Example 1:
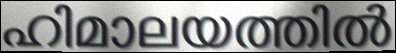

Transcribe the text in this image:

ഹിമാലയത്തിൽ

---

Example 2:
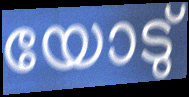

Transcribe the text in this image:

യോടു്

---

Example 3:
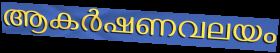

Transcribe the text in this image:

ആകർഷണവലയം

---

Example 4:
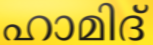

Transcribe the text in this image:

ഹാമിദ്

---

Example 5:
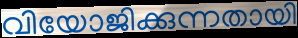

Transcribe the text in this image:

വിയോജിക്കുന്നതായി